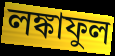
লঙ্কাফুল